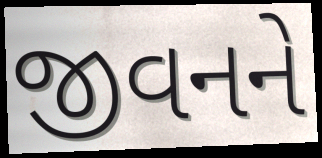
જીવનને